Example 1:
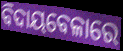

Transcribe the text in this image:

ବିଦାୟବେଳାରେ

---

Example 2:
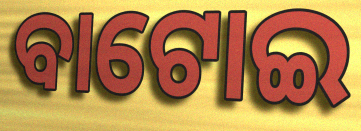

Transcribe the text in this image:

ବାଟୋଇ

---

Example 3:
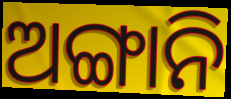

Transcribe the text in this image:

ଅଙ୍ଗାନି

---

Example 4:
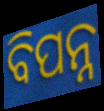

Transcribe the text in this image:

ବିପନ୍ନ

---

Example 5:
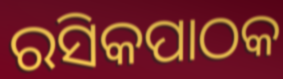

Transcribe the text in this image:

ରସିକପାଠକ